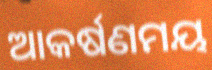
ଆକର୍ଷଣମୟ